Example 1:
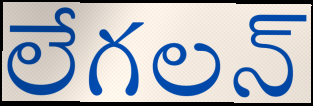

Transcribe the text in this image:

లేగలన్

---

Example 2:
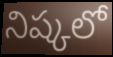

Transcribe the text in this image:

నిష్కలో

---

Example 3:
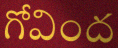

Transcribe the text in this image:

గోవింద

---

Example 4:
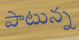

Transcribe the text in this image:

పాటున్న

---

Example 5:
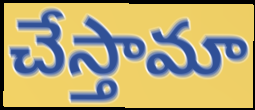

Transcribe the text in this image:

చేస్తామా